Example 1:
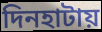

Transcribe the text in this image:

দিনহাটায়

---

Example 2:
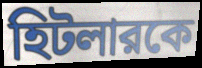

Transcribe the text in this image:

হিটলারকে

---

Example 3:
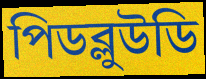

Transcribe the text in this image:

পিডব্লুউডি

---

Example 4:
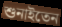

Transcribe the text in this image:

শুনাইতেন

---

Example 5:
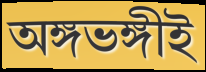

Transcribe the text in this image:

অঙ্গভঙ্গীই